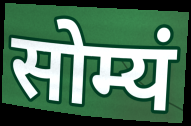
सोम्यं